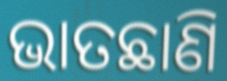
ଭାତଛାଣି